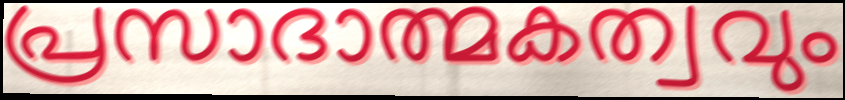
പ്രസാദാത്മകത്വവും